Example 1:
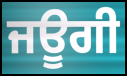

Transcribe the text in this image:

ਜਊਗੀ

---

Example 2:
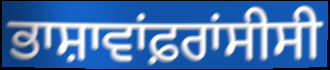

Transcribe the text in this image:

ਭਾਸ਼ਾਵਾਂਫ਼ਰਾਂਸੀਸੀ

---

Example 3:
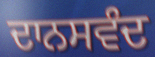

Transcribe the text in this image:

ਦਾਨਸਵੰਦ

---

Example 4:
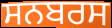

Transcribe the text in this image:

ਸਨਬਰਸ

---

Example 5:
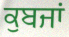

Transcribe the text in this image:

ਕੁਬਜਾਂ